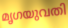
മൃഗയുവതി